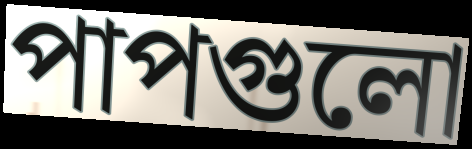
পাপগুলো